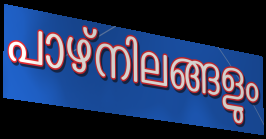
പാഴ്നിലങ്ങളും